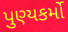
પુણ્યકર્મો